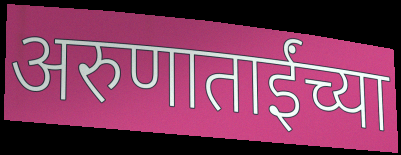
अरुणाताईंच्या